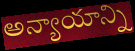
అన్యాయాన్ని